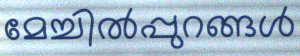
മേച്ചിൽപ്പുറങ്ങൾ